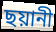
ছয়ানী